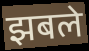
झबले